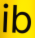
ib